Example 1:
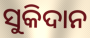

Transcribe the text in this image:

ସୁକିଦାନ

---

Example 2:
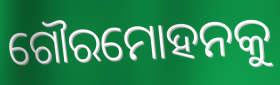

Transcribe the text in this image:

ଗୌରମୋହନକୁ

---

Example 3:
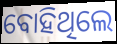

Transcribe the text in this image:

ବୋହିଥିଲେ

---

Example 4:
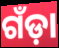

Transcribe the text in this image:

ଗଁଡ଼ା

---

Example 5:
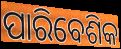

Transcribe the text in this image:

ପାରିବେଶିକ